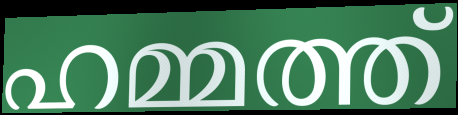
ഹമ്മത്ത്